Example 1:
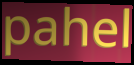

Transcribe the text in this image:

pahel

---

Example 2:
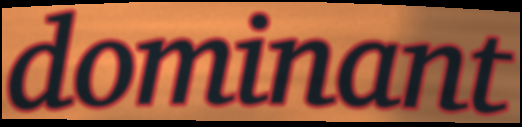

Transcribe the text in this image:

dominant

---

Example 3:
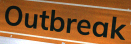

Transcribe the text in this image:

Outbreak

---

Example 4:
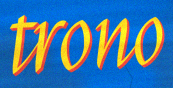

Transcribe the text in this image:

trono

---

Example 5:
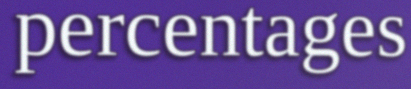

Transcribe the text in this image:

percentages